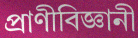
প্রাণীবিজ্ঞানী